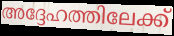
അദ്ദേഹത്തിലേക്ക്